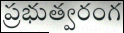
ప్రభుత్వరంగ